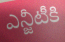
ఎన్జీటీకి